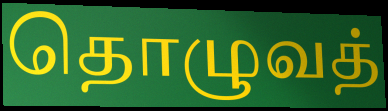
தொழுவத்